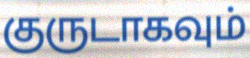
குருடாகவும்